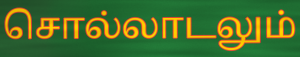
சொல்லாடலும்